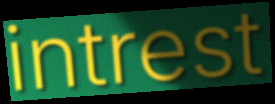
intrest